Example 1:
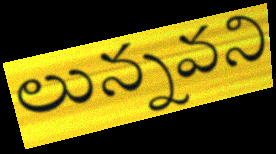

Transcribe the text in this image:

లున్నవని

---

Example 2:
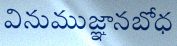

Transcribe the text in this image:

వినుముజ్ఞానబోధ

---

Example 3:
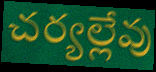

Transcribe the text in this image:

చర్యల్లేవు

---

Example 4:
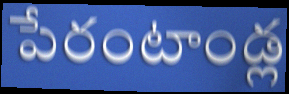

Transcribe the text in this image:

పేరంటాండ్ల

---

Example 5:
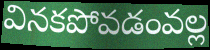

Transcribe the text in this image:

వినకపోవడంవల్ల